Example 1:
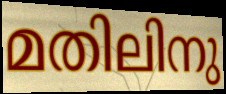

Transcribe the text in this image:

മതിലിനു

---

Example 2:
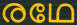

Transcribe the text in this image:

രഥേ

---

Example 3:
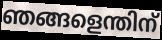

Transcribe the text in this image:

ഞങ്ങളെന്തിന്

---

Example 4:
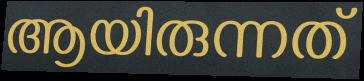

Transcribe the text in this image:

ആയിരുന്നത്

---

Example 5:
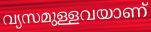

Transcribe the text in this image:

വ്യസമുള്ളവയാണ്